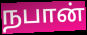
நபான்